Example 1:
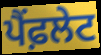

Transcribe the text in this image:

ਪੈਂਫ਼ਲੇਟ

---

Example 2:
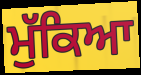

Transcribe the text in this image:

ਮੁੱਕਿਆ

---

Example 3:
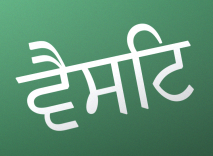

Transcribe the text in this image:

ਵੈਸਟਿ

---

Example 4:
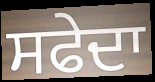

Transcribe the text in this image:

ਸਫੇਦਾ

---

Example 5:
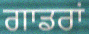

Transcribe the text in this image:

ਗਾਡਰਾਂ